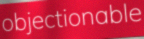
objectionable